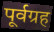
पूर्वग्रह